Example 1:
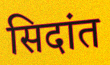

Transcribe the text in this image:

सिदांत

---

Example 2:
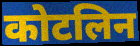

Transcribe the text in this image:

कोटलिन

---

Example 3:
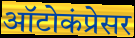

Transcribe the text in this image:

ऑटोकंप्रेसर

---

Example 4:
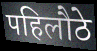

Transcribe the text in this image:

पहिलौठे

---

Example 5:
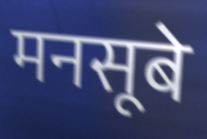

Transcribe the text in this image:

मनसूबे